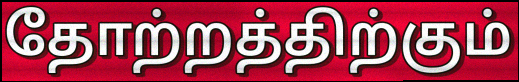
தோற்றத்திற்கும்